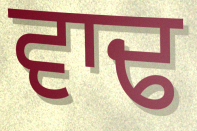
ਵਾਢ